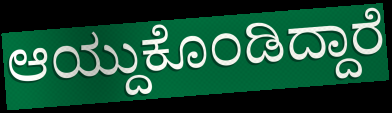
ಆಯ್ದುಕೊಂಡಿದ್ದಾರೆ